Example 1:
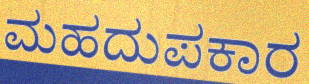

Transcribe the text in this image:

ಮಹದುಪಕಾರ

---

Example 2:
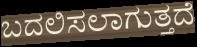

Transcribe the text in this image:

ಬದಲಿಸಲಾಗುತ್ತದೆ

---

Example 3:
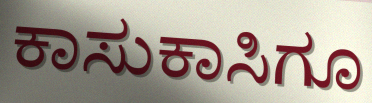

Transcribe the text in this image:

ಕಾಸುಕಾಸಿಗೂ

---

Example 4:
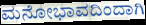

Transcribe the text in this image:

ಮನೋಭಾವದಿಂದಾಗಿ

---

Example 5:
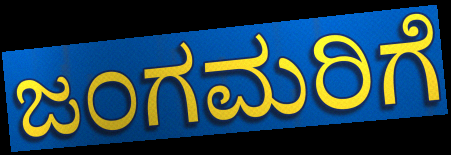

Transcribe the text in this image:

ಜಂಗಮರಿಗೆ